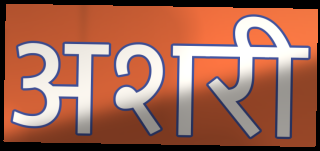
अशरी